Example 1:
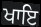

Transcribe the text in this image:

ਖਾਇ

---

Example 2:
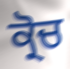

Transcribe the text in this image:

ਕ੍ਰੋਚ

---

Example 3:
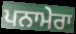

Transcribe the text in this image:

ਪਨਾਮੇਰਾ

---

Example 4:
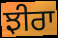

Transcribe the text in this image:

ਝੀਰਾ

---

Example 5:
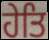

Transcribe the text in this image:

ਹੇਤਿ